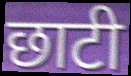
छाटी